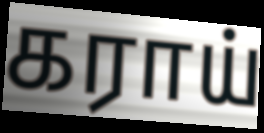
கராய்